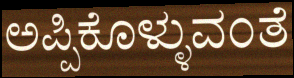
ಅಪ್ಪಿಕೊಳ್ಳುವಂತೆ